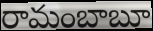
రామంబాబూ